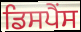
ਡਿਸਪੈਂਸ